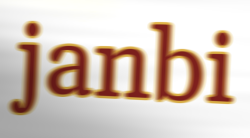
janbi